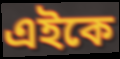
এইকে